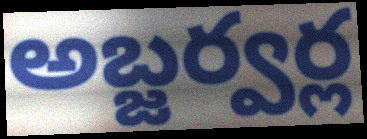
అబ్జర్వర్ల